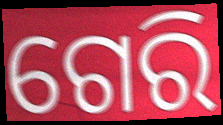
ଗେରି